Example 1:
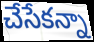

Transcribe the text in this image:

చేసేకన్నా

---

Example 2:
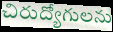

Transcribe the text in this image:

చిరుద్యోగులను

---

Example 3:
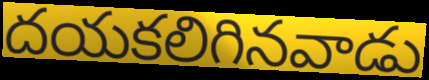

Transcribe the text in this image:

దయకలిగినవాడు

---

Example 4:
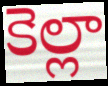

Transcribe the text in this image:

కెల్లా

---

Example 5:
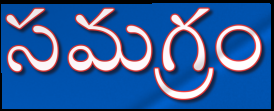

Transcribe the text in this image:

సమగ్రం